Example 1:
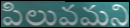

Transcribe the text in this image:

పిలువమని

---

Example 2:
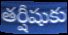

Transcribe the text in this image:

తర్షీషుకు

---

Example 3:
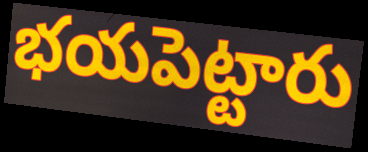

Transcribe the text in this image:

భయపెట్టారు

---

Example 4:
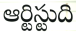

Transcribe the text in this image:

ఆర్టిస్టుది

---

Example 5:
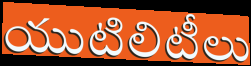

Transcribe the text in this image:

యుటిలిటీలు